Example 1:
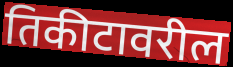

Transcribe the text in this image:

तिकीटावरील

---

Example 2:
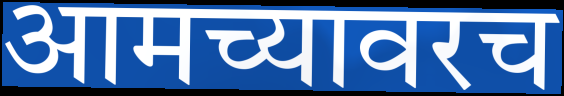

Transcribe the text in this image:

आमच्यावरच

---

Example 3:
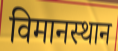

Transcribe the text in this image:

विमानस्थान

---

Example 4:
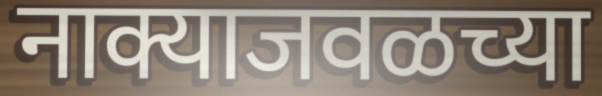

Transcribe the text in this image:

नाक्याजवळच्या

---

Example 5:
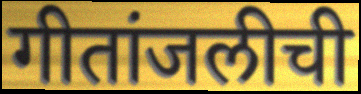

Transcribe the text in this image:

गीतांजलीची